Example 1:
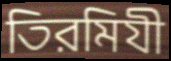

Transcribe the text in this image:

তিরমিযী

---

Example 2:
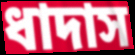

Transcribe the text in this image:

ধাদাস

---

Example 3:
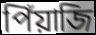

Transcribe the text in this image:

পিঁয়াজি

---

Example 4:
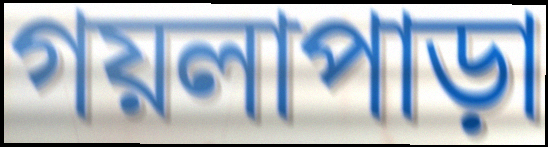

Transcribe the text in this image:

গয়লাপাড়া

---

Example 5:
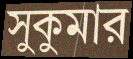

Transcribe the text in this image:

সুকুমার